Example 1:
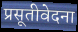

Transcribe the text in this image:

प्रसूतीवेदना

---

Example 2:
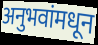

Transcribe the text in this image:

अनुभवांमधून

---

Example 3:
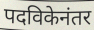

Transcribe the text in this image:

पदविकेनंतर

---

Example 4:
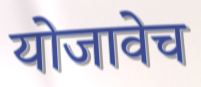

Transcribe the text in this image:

योजावेच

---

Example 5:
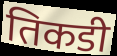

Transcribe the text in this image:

तिकडी